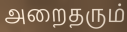
அறைதரும்